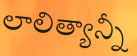
లాలిత్యాన్నీ